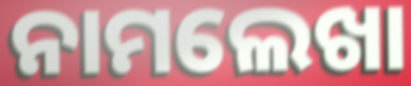
ନାମଲେଖା